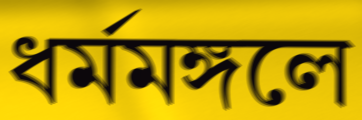
ধর্মমঙ্গলে